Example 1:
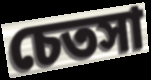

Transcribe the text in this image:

চেতসা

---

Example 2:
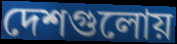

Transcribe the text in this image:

দেশগুলোয়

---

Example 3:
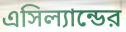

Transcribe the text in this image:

এসিল্যান্ডের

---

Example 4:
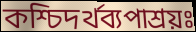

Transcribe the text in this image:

কশ্চিদর্থব্যপাশ্রয়ঃ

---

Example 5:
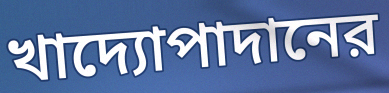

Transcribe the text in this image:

খাদ্যোপাদানের